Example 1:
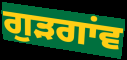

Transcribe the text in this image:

ਗੁੜਗਾਂਵ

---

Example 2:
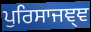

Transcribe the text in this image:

ਪੁਰਿਸਾਜਞ੍ਞ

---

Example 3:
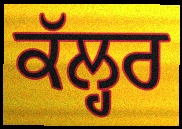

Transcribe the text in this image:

ਕੱਲ੍ਹਰ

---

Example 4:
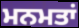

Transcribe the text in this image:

ਮਨਮਤਾਂ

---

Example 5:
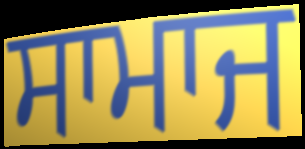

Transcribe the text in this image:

ਸਾਮਾਜ